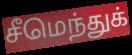
சீமெந்துக்